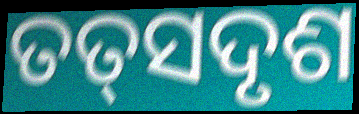
ତତ୍‌ସଦୃଶ